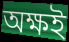
অক্ষই